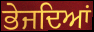
ਭੇਜਦਿਆਂ